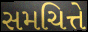
સમચિત્તે